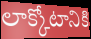
లాక్కోటానికి